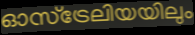
ഓസ്ട്രേലിയയിലും